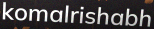
komalrishabh